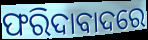
ଫରିଦାବାଦରେ